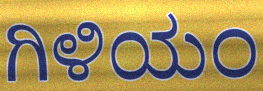
ಗಿಳಿಯಂ